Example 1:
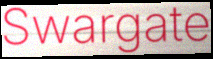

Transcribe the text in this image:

Swargate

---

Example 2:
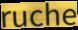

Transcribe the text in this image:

ruche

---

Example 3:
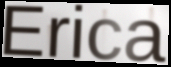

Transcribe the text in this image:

Erica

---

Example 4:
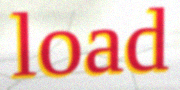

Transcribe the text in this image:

load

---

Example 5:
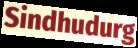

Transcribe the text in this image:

Sindhudurg